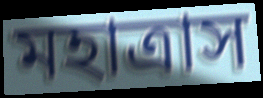
মহাত্রাস